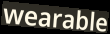
wearable